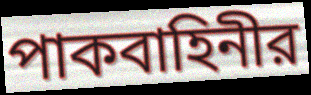
পাকবাহিনীর